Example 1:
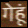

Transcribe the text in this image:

गेहूं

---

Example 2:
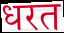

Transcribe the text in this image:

धरत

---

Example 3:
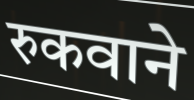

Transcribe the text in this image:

रुकवाने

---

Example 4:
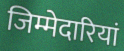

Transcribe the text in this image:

जिम्मेदारियां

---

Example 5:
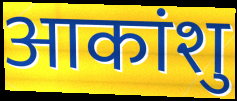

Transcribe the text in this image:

आकांशु